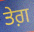
ਤੇਗ਼